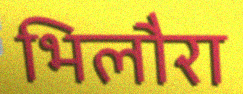
भिलौरा